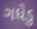
ગધેડુ